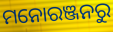
ମନୋରଞ୍ଜନରୁ